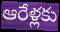
ఆరేళ్లకు